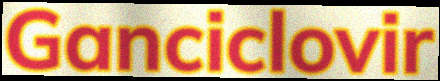
Ganciclovir